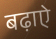
बढ़ाऐ